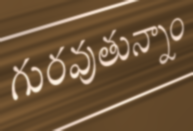
గురవుతున్నాం